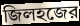
জিলহজের